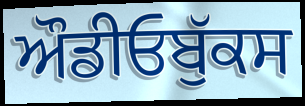
ਔਡੀਓਬੁੱਕਸ